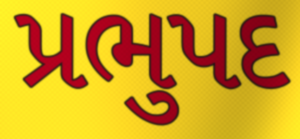
પ્રભુપદ